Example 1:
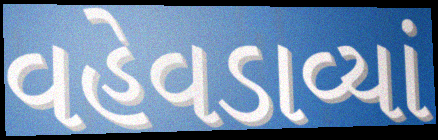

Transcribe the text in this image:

વહેવડાવ્યાં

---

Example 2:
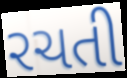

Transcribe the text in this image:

રચતી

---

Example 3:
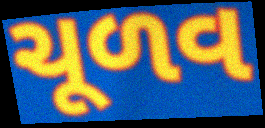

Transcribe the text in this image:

ચૂળવ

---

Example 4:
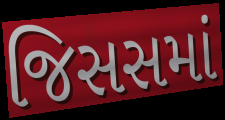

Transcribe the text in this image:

જિસસમાં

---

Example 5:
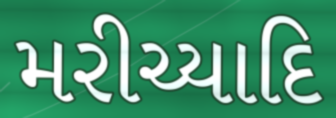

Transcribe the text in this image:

મરીચ્યાદિ